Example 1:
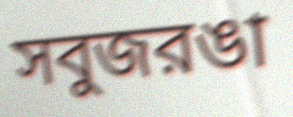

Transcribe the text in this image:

সবুজরঙা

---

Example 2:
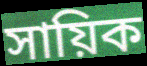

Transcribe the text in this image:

সায়িক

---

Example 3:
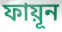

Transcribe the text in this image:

ফায়ূন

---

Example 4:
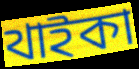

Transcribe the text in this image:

থাইকা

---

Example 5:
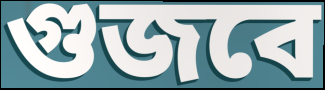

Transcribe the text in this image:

গুজবে